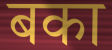
बका